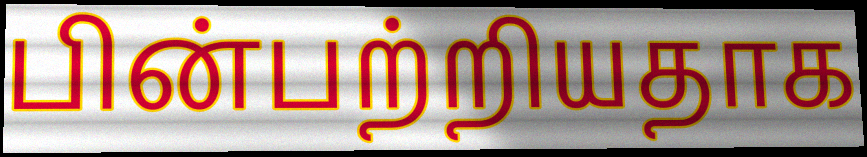
பின்பற்றியதாக